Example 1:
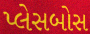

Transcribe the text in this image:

પ્લેસબોસ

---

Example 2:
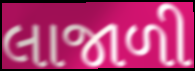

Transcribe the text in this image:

લાજાળી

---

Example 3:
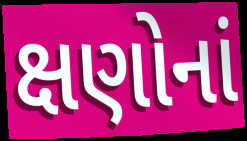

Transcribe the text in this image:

ક્ષણોનાં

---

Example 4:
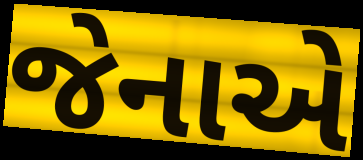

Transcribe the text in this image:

જેનાએ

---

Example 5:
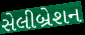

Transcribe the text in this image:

સેલીબ્રેશન